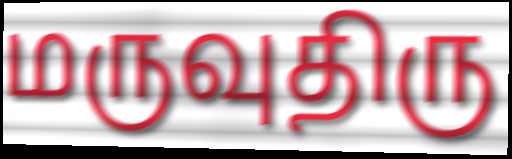
மருவுதிரு